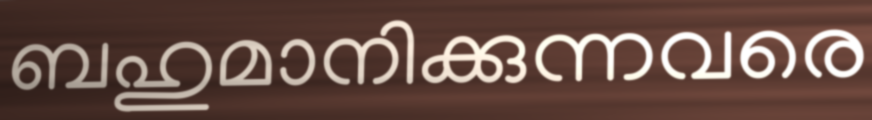
ബഹുമാനിക്കുന്നവരെ